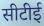
सीटीई